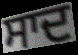
ਸਾਦ